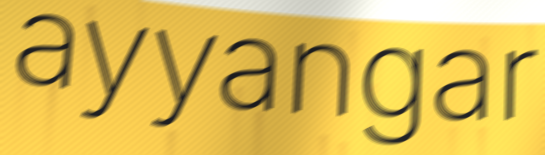
ayyangar